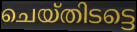
ചെയ്തിടട്ടെ